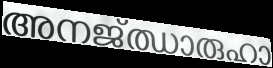
അനജ്ഝാരുഹാ